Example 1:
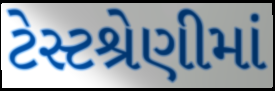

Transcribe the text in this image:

ટેસ્ટશ્રેણીમાં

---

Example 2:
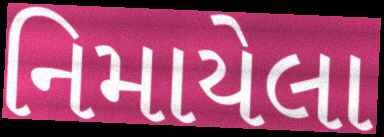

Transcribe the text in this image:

નિમાયેલા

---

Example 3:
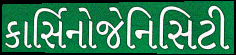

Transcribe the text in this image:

કાર્સિનોજેનિસિટી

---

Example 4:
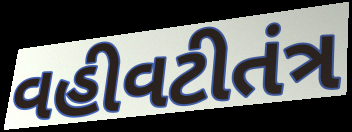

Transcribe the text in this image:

વહીવટીતંત્ર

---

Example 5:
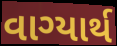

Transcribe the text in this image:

વાગ્યાર્થ